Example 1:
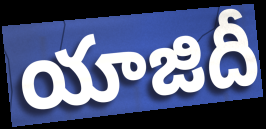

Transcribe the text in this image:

యాజిదీ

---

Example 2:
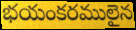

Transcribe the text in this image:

భయంకరములైన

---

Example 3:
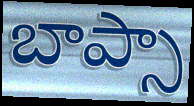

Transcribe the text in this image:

బాప్సా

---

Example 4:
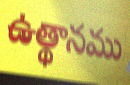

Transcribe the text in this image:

ఉత్థానము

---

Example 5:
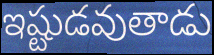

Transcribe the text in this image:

ఇష్టుడవుతాడు